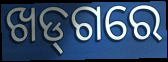
ଖଡ୍‌ଗରେ